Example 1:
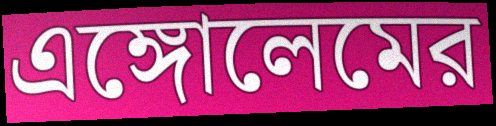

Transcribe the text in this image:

এঙ্গোলেমের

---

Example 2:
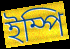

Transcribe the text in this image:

ইম্পি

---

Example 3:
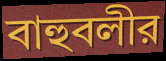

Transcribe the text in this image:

বাহুবলীর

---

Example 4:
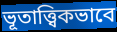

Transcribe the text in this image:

ভূতাত্ত্বিকভাবে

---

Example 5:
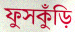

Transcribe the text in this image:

ফুসকুঁড়ি